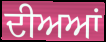
ਦੀਅਆਂ